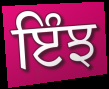
ਇੰਝ